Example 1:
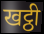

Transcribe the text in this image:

खट्ठी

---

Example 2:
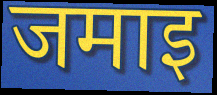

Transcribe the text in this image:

जमाइ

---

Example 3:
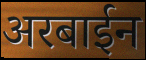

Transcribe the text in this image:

अरबाईन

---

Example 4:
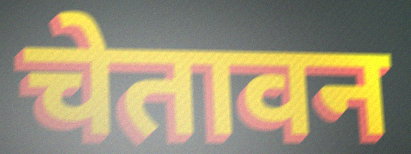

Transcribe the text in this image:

चेतावन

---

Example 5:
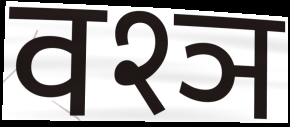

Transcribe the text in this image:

वश्ञ